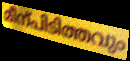
മീന്പിടിത്തവും